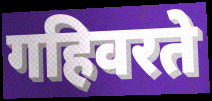
गहिवरते